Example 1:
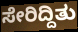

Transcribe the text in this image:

ಸೇರಿದ್ದಿತು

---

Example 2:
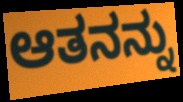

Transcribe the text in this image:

ಆತನನ್ನು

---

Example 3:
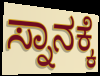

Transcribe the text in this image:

ಸ್ನಾನಕ್ಕೆ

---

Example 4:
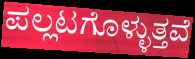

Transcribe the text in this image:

ಪಲ್ಲಟಗೊಳ್ಳುತ್ತವೆ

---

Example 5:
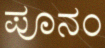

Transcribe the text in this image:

ಪೂನಂ